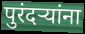
पुरंदऱ्यांना